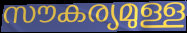
സൗകര്യമുള്ള